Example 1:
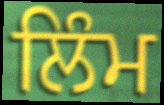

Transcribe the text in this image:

ਲਿੰਮ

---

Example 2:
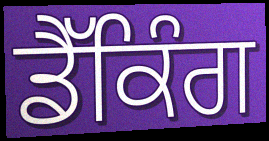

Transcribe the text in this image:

ਡੈੱਕਿੰਗ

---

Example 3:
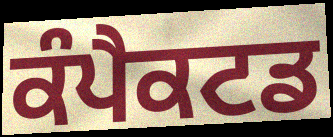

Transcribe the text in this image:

ਕੰਪੈਕਟਡ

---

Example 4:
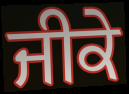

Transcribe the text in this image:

ਜੀਕੇ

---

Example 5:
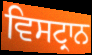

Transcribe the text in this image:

ਵਿਸਟ੍ਰਾਨ